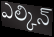
ఎల్కిన్